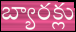
బ్యారక్లు